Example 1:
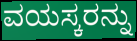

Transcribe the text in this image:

ವಯಸ್ಕರನ್ನು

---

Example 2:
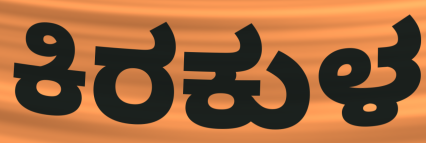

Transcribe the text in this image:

ಕಿರಕುಳ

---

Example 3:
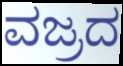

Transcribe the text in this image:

ವಜ್ರದ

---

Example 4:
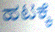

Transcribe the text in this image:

ಹಟಕ್ಕೆ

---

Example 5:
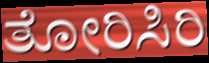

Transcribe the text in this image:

ತೋರಿಸಿರಿ